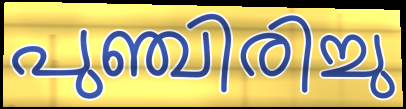
പുഞ്ചിരിച്ചു